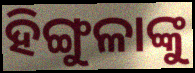
ହିଙ୍ଗୁଳାଙ୍କୁ